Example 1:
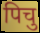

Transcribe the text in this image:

पिचु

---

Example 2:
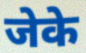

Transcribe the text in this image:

जेके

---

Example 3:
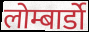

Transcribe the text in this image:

लोम्बार्डो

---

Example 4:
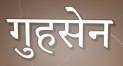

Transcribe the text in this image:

गुहसेन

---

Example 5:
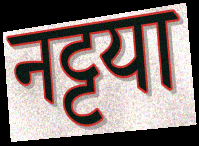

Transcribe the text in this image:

नट्टया